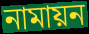
নামায়ন